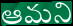
ఆమని